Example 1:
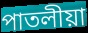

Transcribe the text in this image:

পাতলীয়া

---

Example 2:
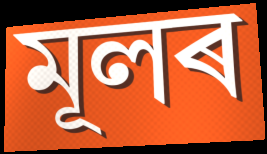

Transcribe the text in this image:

মূলৰ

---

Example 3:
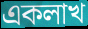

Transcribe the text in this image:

একলাখ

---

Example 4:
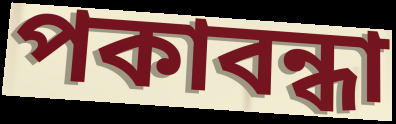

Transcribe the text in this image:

পকাবন্ধা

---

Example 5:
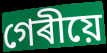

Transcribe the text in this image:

গেৰীয়ে